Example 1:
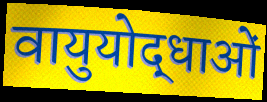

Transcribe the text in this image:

वायुयोद्धाओं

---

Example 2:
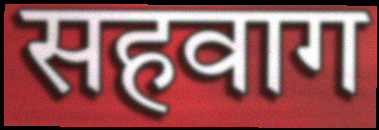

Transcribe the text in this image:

सहवाग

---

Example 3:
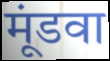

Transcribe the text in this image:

मूंडवा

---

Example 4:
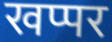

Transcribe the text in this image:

खप्पर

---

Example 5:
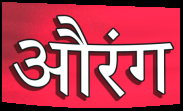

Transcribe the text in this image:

औरंग